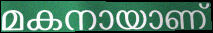
മകനായാണ്